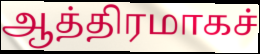
ஆத்திரமாகச்